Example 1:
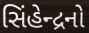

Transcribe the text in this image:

સિંહેન્દ્રનો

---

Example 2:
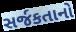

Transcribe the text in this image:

સર્જકતાનો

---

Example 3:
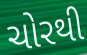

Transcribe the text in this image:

ચોરથી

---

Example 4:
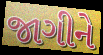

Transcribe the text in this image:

જાગીને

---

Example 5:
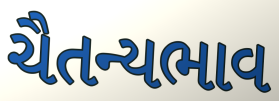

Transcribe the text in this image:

ચૈતન્યભાવ